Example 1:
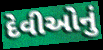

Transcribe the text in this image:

દેવીઓનું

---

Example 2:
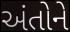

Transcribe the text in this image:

અંતોને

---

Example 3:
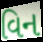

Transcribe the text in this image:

વિન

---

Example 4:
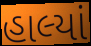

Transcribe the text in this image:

હાલ્યાં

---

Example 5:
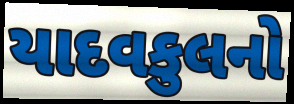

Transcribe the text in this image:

યાદવકુલનો